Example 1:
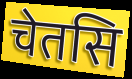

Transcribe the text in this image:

चेतसि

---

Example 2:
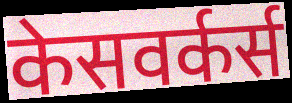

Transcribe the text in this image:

केसवर्कर्स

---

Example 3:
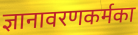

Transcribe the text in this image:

ज्ञानावरणकर्मका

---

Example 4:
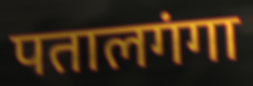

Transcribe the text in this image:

पतालगंगा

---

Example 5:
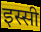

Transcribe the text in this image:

इस्सी